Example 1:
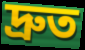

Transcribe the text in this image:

দ্ৰুত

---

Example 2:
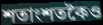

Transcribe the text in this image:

শতাংশতকৈও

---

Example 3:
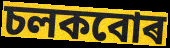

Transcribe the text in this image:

চলকবোৰ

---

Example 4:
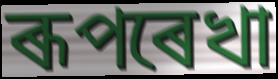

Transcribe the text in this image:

ৰূপৰেখা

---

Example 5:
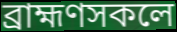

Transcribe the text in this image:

ব্ৰাহ্মণসকলে